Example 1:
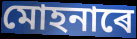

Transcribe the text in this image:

মোহনাৰে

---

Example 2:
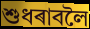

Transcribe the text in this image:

শুধৰাবলৈ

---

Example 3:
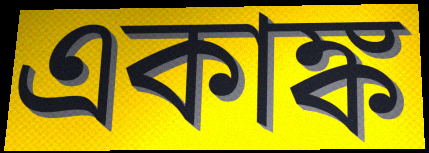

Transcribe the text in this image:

একাঙ্ক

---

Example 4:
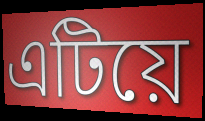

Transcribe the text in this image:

এটিয়ে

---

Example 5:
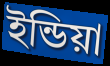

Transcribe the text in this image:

ইন্ডিয়া